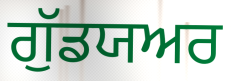
ਗੁੱਡਯਅਰ